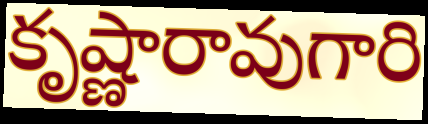
కృష్ణారావుగారి